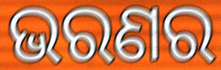
ଭରଣର